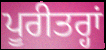
ਪੂਰੀਤਰ੍ਹਾਂ